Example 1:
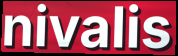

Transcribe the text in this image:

nivalis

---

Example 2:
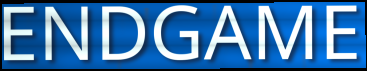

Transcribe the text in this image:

ENDGAME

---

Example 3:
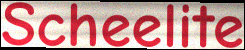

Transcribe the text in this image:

Scheelite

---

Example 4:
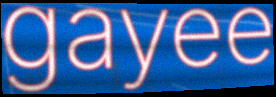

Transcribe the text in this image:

gayee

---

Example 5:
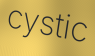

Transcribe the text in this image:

cystic